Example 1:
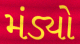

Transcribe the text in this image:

મંડ્યો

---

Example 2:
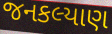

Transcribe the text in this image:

જનકલ્યાણ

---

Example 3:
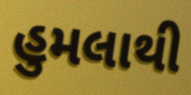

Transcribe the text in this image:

હુમલાથી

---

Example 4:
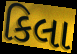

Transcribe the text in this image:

કિલા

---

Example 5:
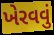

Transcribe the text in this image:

ખેરવવું